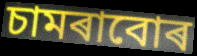
চামৰাবোৰ